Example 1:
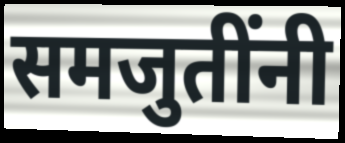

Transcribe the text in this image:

समजुतींनी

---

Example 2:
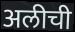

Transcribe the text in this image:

अलीची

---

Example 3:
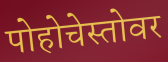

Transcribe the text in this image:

पोहोचेस्तोवर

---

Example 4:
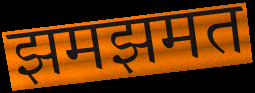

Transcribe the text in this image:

झमझमत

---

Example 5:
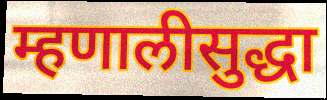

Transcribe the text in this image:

म्हणालीसुद्धा